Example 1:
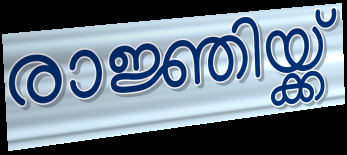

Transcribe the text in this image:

രാജ്ഞിയ്ക്ക്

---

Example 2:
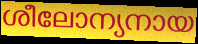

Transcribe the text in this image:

ശീലോന്യനായ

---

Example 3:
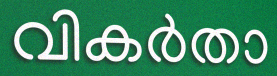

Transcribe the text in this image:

വികർതാ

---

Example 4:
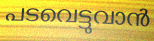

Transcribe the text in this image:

പടവെട്ടുവാൻ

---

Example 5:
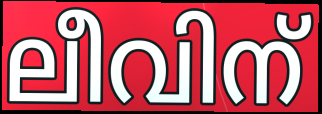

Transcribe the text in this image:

ലീവിന്